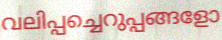
വലിപ്പച്ചെറുപ്പങ്ങളോ